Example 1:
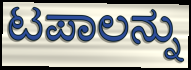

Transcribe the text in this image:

ಟಪಾಲನ್ನು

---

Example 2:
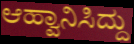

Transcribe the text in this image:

ಆಹ್ವಾನಿಸಿದ್ದು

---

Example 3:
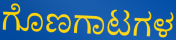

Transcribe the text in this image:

ಗೊಣಗಾಟಗಳ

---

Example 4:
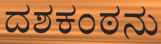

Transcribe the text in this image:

ದಶಕಂಠನು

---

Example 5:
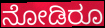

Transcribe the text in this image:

ನೋಡಿರೂ